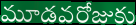
మూడవరోజుకు